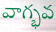
వాగ్భవ